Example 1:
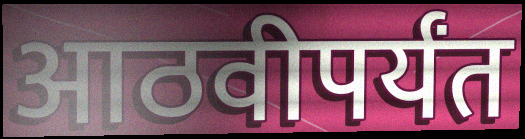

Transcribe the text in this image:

आठवीपर्यंत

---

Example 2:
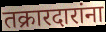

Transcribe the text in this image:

तक्रारदारांना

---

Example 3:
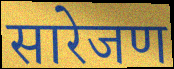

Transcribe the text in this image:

सारेजण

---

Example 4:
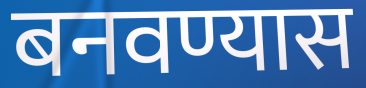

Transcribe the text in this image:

बनवण्यास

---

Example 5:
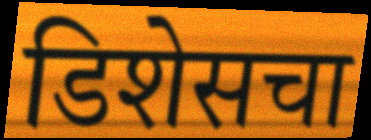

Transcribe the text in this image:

डिशेसचा